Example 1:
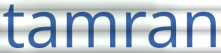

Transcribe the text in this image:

tamran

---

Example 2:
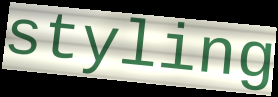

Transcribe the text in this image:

styling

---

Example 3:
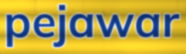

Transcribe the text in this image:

pejawar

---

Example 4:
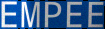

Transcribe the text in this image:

EMPEE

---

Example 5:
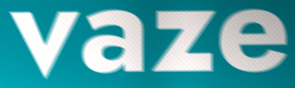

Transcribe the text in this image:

vaze